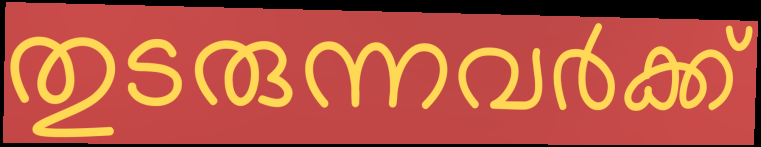
തുടരുന്നവർക്ക്